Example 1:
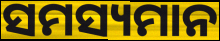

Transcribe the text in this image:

ସମସ୍ୟମାନ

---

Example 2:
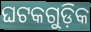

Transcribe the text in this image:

ଘଟକଗୁଡ଼ିକ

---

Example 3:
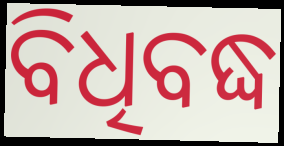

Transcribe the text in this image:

ବିଧିବଦ୍ଧ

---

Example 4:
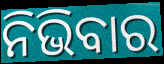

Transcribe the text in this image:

ନିଭିବାର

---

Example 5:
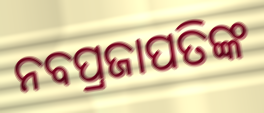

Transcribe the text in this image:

ନବପ୍ରଜାପତିଙ୍କ